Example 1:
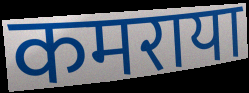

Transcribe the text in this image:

कमराया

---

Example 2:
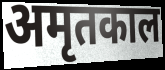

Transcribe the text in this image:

अमृतकाल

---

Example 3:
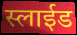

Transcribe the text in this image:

स्लाईड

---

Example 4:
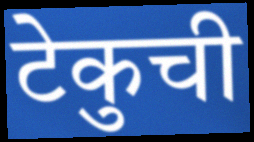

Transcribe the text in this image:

टेकुची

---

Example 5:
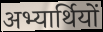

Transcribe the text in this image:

अभ्यार्थियों